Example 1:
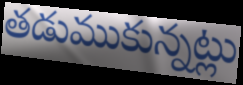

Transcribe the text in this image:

తడుముకున్నట్లు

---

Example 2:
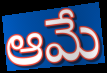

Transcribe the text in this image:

ఆమే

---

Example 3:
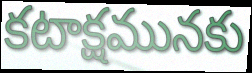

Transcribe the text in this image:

కటాక్షమునకు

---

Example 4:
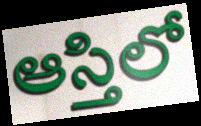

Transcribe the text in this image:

ఆస్తిలో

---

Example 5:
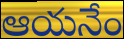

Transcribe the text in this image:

ఆయనేం